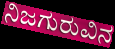
ನಿಜಗುರುವಿನ